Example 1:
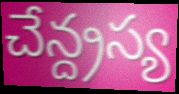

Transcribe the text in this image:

చేన్ద్రస్య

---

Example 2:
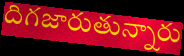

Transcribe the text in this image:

దిగజారుతున్నారు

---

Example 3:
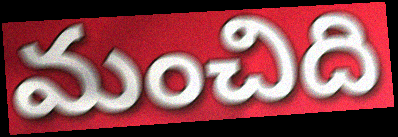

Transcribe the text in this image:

మంచిది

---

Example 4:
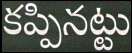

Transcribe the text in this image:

కప్పినట్టు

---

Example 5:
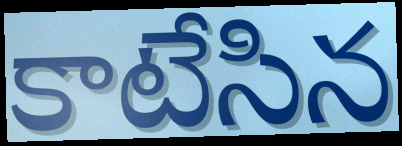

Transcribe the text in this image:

కాటేసిన